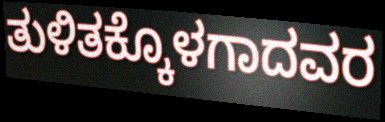
ತುಳಿತಕ್ಕೊಳಗಾದವರ